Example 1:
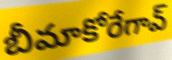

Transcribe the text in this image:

బీమాకోరేగావ్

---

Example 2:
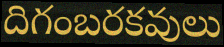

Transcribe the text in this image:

దిగంబరకవులు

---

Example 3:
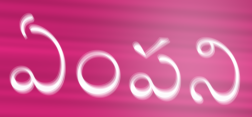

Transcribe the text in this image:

ఏంపని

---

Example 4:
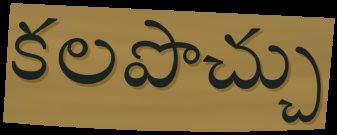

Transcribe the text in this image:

కలపొచ్చు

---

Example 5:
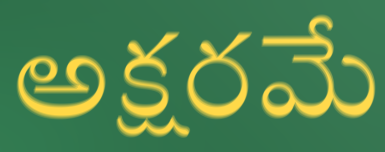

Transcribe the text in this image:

అక్షరమే